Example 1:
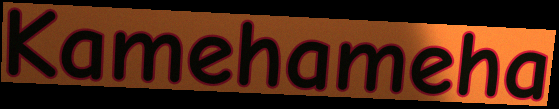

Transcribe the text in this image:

Kamehameha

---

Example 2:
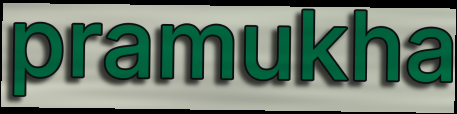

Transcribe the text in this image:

pramukha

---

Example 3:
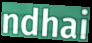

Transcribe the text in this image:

ndhai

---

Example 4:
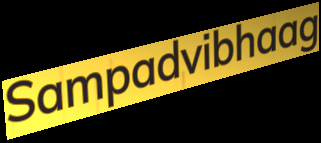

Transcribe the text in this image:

Sampadvibhaag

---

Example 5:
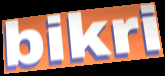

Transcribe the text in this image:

bikri